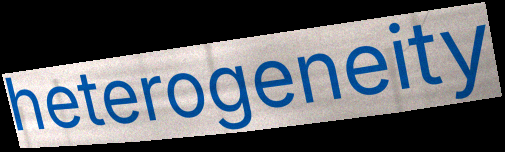
heterogeneity